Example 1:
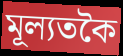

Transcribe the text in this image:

মূল্যতকৈ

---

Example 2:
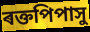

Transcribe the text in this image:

ৰক্তপিপাসু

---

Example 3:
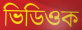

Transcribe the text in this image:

ভিডিওক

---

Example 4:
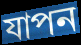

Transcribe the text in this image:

যাপন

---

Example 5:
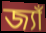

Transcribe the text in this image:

জ্যাঁ